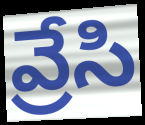
వ్రేసి